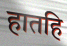
हातहि